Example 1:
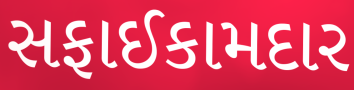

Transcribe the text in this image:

સફાઈકામદાર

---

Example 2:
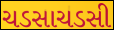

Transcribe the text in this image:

ચડસાચડસી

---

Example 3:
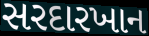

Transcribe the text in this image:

સરદારખાન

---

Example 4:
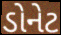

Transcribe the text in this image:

ડોનેટ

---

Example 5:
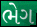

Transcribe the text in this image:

ભેગ